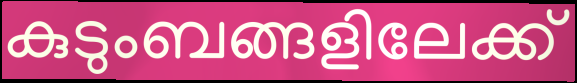
കുടുംബങ്ങളിലേക്ക്